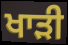
ਖਾੜੀ